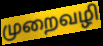
முறைவழி